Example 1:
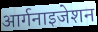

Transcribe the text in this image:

आर्गनाइजेशन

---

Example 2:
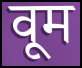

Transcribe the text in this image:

वूम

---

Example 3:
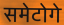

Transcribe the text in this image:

समेटोगे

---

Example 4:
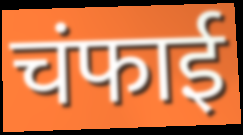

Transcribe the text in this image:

चंफाई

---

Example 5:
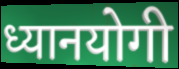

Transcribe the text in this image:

ध्यानयोगी